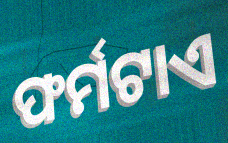
ଫର୍ମଟାଏ